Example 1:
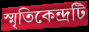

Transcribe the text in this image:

স্মৃতিকেন্দ্রটি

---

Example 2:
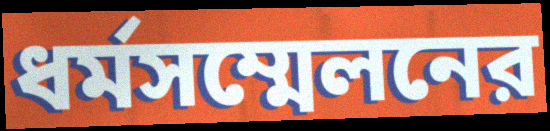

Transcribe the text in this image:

ধর্মসম্মেলনের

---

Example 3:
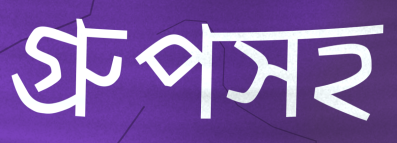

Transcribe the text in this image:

গ্রুপসহ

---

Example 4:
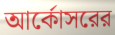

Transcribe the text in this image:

আর্কোসরের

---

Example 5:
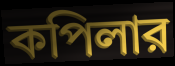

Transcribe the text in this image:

কপিলার